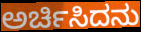
ಅರ್ಚಿಸಿದನು